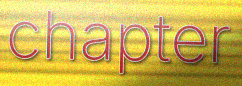
chapter